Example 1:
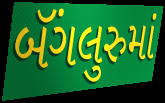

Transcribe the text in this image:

બૅંગલુરુમાં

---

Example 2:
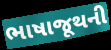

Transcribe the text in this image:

ભાષાજૂથની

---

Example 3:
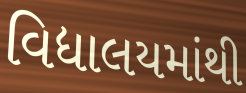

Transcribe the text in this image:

વિદ્યાલયમાંથી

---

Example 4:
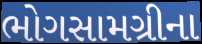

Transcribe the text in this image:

ભોગસામગ્રીના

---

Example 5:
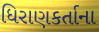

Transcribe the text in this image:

ધિરાણકર્તાના